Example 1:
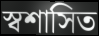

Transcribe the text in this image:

স্বশাসিত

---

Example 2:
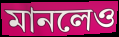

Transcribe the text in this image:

মানলেও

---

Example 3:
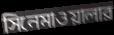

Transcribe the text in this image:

সিনেমাওয়ালার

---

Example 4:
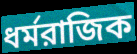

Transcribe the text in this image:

ধর্মরাজিক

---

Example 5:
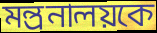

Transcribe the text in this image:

মন্ত্রনালয়কে